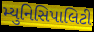
મ્યુનિસિપાલિટી